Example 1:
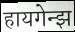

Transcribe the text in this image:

हायगेन्झ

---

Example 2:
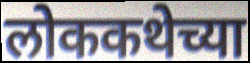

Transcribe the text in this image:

लोककथेच्या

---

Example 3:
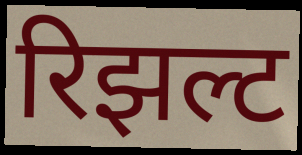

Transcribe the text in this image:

रिझल्ट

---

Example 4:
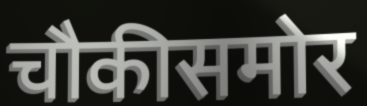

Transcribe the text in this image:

चौकीसमोर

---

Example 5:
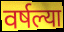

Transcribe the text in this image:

वर्षल्या